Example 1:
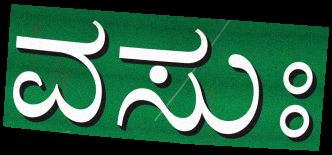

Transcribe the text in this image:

ವಸುಃ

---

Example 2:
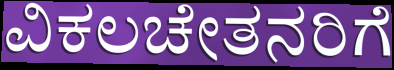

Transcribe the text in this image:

ವಿಕಲಚೇತನರಿಗೆ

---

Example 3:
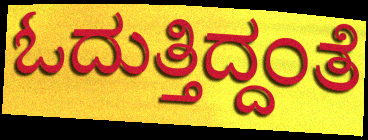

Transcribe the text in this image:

ಓದುತ್ತಿದ್ದಂತೆ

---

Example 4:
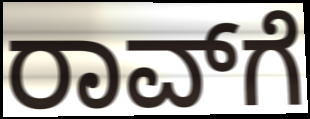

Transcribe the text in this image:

ರಾವ್‌ಗೆ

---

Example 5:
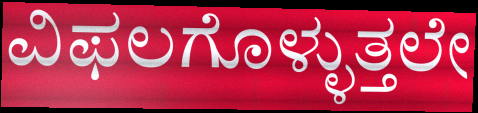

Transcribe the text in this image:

ವಿಫಲಗೊಳ್ಳುತ್ತಲೇ